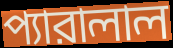
প্যারালাল